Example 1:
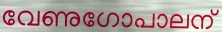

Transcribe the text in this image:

വേണുഗോപാലന്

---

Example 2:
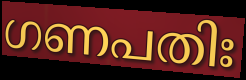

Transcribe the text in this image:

ഗണപതിഃ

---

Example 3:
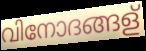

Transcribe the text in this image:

വിനോദങ്ങള്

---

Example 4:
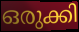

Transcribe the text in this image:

ഒരുക്കി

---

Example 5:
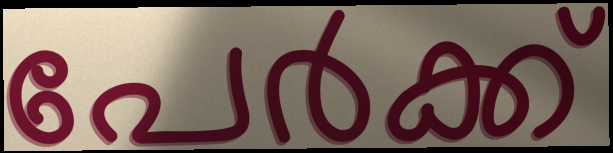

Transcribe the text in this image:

പേർക്ക്